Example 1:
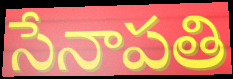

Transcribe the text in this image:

సేనాపతి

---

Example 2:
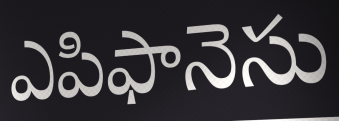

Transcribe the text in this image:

ఎపిఫానెసు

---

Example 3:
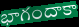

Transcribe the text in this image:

భాగందాకా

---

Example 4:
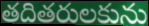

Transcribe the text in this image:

తదితరులకును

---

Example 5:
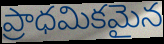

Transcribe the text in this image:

ప్రాధమికమైన